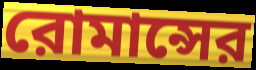
রোমান্সের